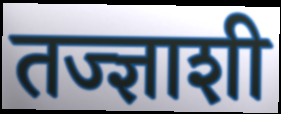
तज्ज्ञाशी